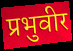
प्रभुवीर